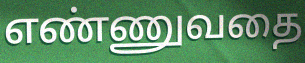
எண்ணுவதை